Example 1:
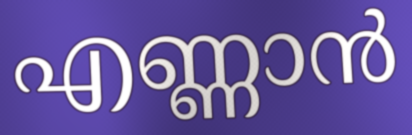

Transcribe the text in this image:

എണ്ണാൻ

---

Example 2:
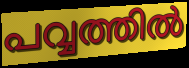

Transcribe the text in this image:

പവ്വത്തിൽ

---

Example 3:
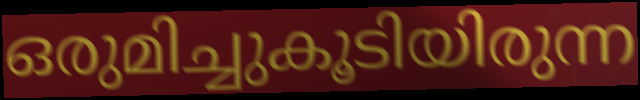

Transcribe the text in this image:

ഒരുമിച്ചുകൂടിയിരുന്ന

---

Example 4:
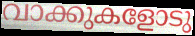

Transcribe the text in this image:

വാക്കുകളോടു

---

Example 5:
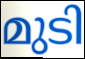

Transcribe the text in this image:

മുടി